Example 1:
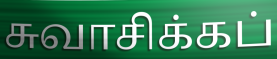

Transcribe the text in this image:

சுவாசிக்கப்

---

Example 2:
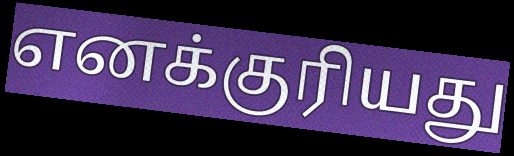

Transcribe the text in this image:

எனக்குரியது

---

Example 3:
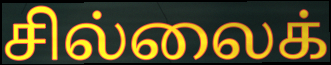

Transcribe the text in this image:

சில்லைக்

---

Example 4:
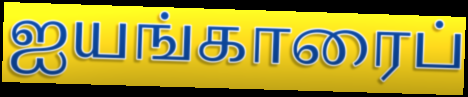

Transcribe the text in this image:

ஐயங்காரைப்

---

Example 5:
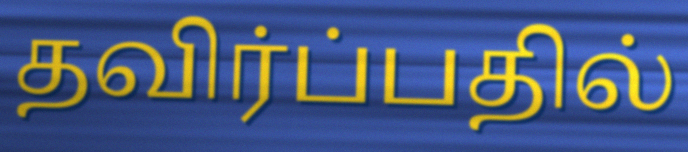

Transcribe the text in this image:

தவிர்ப்பதில்